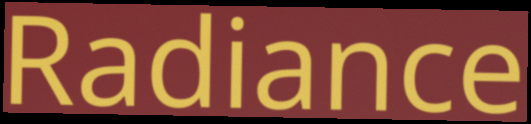
Radiance